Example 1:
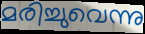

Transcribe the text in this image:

മരിച്ചുവെന്നു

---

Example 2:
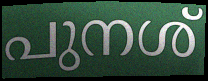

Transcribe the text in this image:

പുനശ്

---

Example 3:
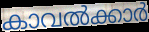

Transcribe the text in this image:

കാവൽക്കാർ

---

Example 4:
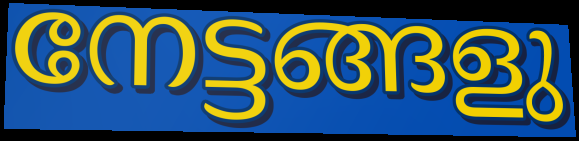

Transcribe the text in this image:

നേട്ടങ്ങളു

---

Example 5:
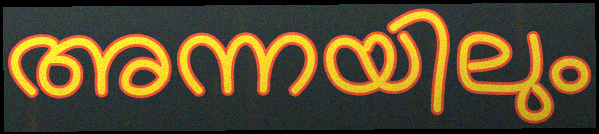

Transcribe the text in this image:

അന്നയിലും